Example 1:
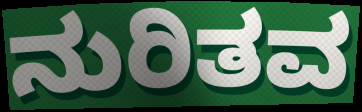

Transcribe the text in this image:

ನುರಿತವ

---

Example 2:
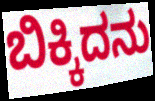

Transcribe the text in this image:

ಬಿಕ್ಕಿದನು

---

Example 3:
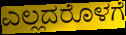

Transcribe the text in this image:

ಎಲ್ಲದರೊಳಗೆ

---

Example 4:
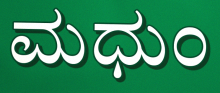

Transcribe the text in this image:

ಮಧುಂ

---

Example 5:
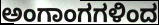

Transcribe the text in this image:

ಅಂಗಾಂಗಗಳಿಂದ